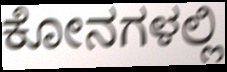
ಕೋನಗಳಲ್ಲಿ